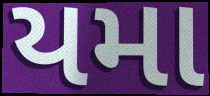
યમા